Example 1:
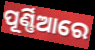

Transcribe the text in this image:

ପୂର୍ଣ୍ଣିଆରେ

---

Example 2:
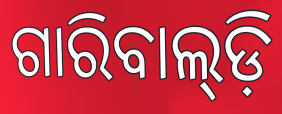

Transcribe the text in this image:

ଗାରିବାଲ୍‌ଡ଼ି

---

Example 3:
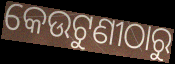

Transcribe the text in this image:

କେଉଟୁଣୀଠାରୁ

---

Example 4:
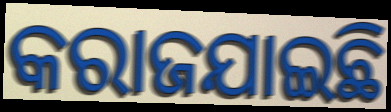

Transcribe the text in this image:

କରାଜଯାଇଛି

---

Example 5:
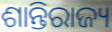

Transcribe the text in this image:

ଶାନ୍ତିରାଜ୍ୟ